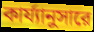
কার্য্যানুসারে